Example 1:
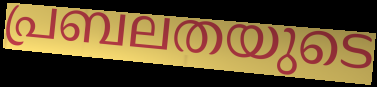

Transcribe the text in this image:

പ്രബലതയുടെ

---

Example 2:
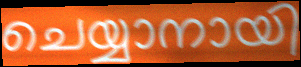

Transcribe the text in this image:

ചെയ്യാനായി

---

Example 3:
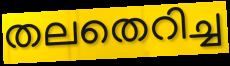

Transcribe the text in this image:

തലതെറിച്ച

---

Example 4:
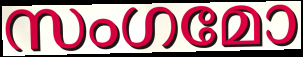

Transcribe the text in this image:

സംഗമോ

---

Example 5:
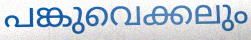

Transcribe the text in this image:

പങ്കുവെക്കലും